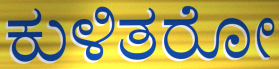
ಕುಳಿತರೋ